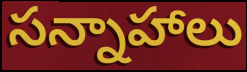
సన్నాహాలు